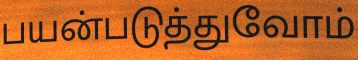
பயன்படுத்துவோம்